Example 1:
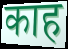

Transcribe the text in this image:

काह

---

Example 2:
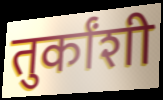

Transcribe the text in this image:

तुर्कांशी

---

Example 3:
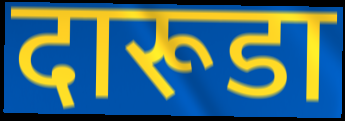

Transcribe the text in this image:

दारूडा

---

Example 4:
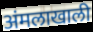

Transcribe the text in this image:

अंमलाखाली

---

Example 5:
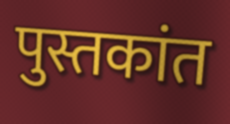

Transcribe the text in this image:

पुस्तकांत